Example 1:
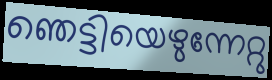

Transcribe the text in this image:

ഞെട്ടിയെഴുന്നേറ്റു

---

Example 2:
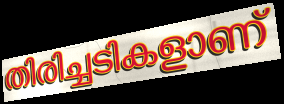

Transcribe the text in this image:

തിരിച്ചടികളാണ്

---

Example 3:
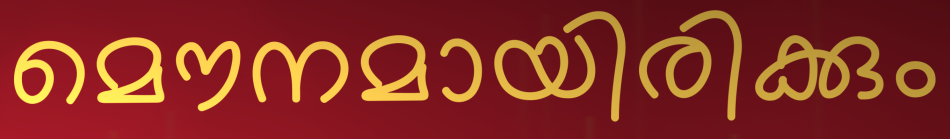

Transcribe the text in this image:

മൌനമായിരിക്കും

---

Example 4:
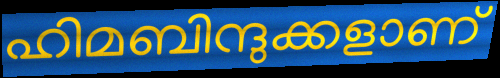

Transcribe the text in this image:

ഹിമബിന്ദുക്കളാണ്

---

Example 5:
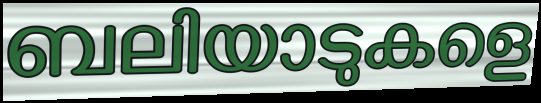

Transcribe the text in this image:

ബലിയാടുകളെ